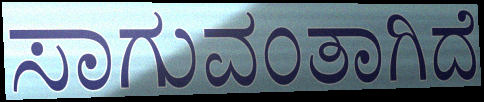
ಸಾಗುವಂತಾಗಿದೆ